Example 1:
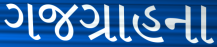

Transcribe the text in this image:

ગજગ્રાહના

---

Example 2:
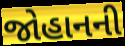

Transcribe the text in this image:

જોહાનની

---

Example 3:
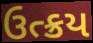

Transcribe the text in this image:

ઉત્ક્રય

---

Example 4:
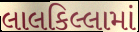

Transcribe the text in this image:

લાલકિલ્લામાં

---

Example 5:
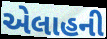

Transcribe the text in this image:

એલાહની